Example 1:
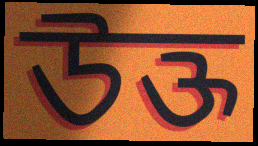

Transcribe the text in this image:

উক্ত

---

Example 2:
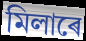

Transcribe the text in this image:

মিলাৰে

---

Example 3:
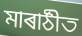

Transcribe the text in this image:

মাৰাঠীত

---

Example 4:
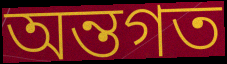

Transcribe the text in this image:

অন্তগত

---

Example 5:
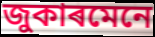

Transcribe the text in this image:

জুকাৰমেনে